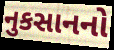
નુકસાનનો